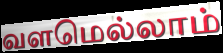
வளமெல்லாம்